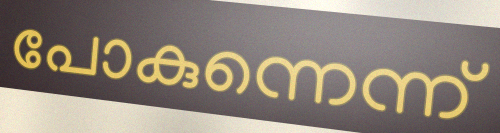
പോകുന്നെന്ന്